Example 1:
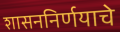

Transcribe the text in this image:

शासननिर्णयाचे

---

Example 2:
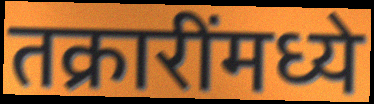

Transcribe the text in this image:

तक्रारींमध्ये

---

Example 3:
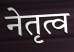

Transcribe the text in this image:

नेतृत्‍व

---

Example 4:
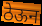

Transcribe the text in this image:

ठेऊन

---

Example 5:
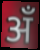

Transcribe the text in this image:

अँ